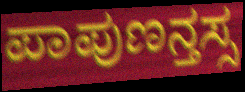
ಪಾಪುಣನ್ತಸ್ಸ